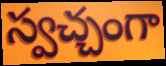
స్వచ్చంగా